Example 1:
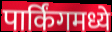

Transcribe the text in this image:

पार्किंगमध्ये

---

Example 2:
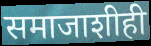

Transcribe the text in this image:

समाजाशीही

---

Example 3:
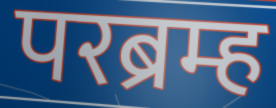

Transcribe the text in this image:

परब्रम्ह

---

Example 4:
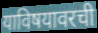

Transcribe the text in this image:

याविषयावरची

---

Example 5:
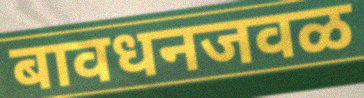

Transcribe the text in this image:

बावधनजवळ